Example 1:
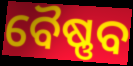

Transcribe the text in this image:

ବୈଷ୍ଣବ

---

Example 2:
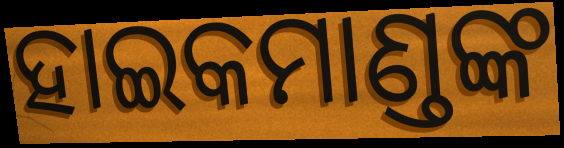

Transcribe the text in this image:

ହାଇକମାଣ୍ଡଙ୍କ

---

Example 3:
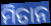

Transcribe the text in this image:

ମିତାନ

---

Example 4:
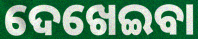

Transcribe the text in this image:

ଦେଖେଇବା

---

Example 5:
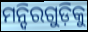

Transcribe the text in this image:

ମନ୍ଦିରଗୁଡ଼ିକୁ